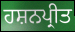
ਹਸ਼ਨਪ੍ਰੀਤ